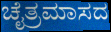
ಚೈತ್ರಮಾಸದ